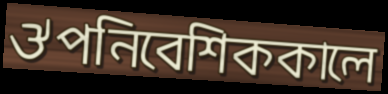
ঔপনিবেশিককালে